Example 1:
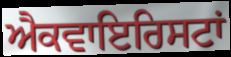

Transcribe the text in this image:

ਐਕਵਾਇਰਿਸਟਾਂ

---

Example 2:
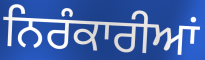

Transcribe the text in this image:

ਨਿਰੰਕਾਰੀਆਂ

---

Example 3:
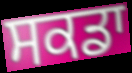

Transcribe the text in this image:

ਸਕਡਾ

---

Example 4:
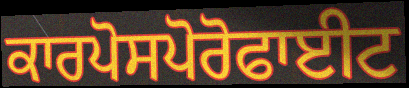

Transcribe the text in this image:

ਕਾਰਪੋਸਪੋਰੋਫਾਈਟ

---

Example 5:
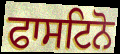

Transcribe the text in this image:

ਫਾਸਟਿਨੋ